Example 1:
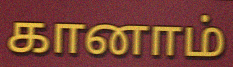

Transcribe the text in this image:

கானாம்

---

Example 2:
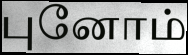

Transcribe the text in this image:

புனோம்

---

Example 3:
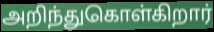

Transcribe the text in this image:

அறிந்துகொள்கிறார்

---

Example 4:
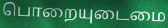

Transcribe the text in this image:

பொறையுடைமை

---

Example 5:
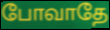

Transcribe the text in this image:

போவாதே